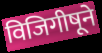
विजिगीषूने